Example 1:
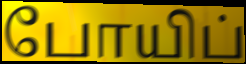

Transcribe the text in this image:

போயிப்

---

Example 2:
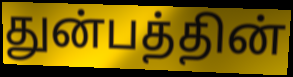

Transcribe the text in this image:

துன்பத்தின்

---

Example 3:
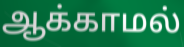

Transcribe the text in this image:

ஆக்காமல்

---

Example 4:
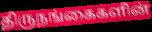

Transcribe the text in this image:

திருநங்கைகளின்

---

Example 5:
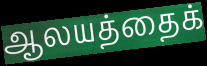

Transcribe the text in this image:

ஆலயத்தைக்